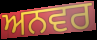
ਅਨਵਰ